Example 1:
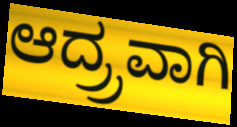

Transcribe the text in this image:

ಆದ್ರ್ರವಾಗಿ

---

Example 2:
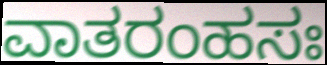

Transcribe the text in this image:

ವಾತರಂಹಸಃ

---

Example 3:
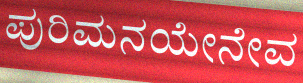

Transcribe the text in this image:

ಪುರಿಮನಯೇನೇವ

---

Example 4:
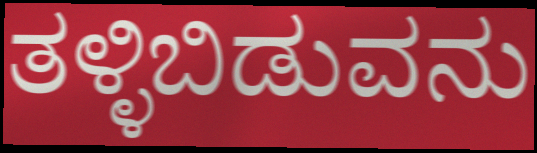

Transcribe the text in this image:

ತಳ್ಳಿಬಿಡುವನು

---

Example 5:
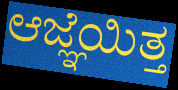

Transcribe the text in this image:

ಆಜ್ಞೆಯಿತ್ತ